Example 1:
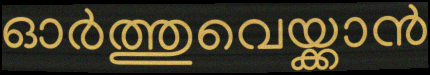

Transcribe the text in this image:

ഓർത്തുവെയ്ക്കാൻ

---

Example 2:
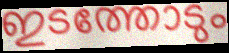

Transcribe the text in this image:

ഇടത്തോടും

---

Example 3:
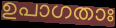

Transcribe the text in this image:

ഉപാഗതാഃ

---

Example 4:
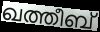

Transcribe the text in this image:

ഖത്തീബ്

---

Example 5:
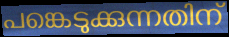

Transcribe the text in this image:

പങ്കെടുക്കുന്നതിന്